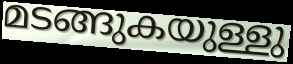
മടങ്ങുകയുള്ളു